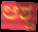
ಆಶ್ಚ